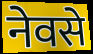
नेवसे